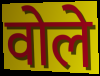
वोले